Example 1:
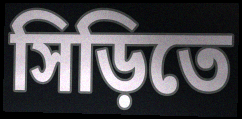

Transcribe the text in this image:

সিড়িতে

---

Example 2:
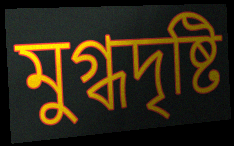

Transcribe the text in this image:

মুগ্ধদৃষ্টি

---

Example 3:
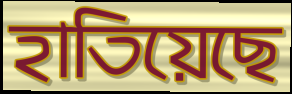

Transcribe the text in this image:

হাতিয়েছে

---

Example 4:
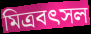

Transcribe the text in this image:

মিত্রবৎসল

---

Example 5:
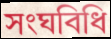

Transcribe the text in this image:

সংঘবিধি